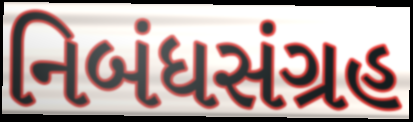
નિબંધસંગ્રહ